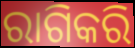
ରାଗିକରି